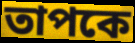
তাপকে